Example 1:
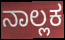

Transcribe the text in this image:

ನಾಲ್ಲಕ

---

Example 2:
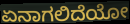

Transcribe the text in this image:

ಏನಾಗಲಿದೆಯೋ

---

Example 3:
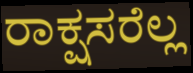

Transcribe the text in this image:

ರಾಕ್ಷಸರೆಲ್ಲ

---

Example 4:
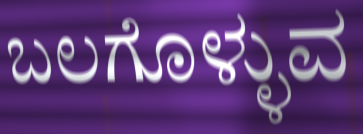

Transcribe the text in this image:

ಬಲಗೊಳ್ಳುವ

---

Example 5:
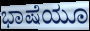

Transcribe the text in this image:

ಭಾಷೆಯೂ